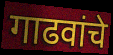
गाढवांचे